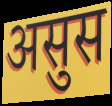
असुस